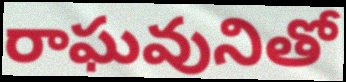
రాఘవునితో